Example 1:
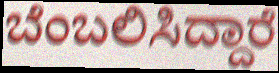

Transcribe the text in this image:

ಬೆಂಬಲಿಸಿದ್ದಾರೆ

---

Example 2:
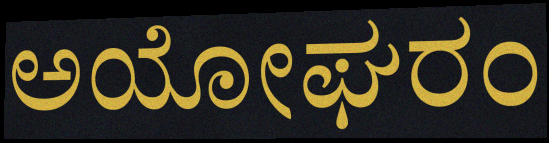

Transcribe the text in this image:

ಅಯೋಘರಂ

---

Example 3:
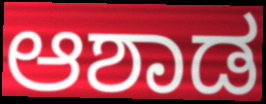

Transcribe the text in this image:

ಆಶಾಡ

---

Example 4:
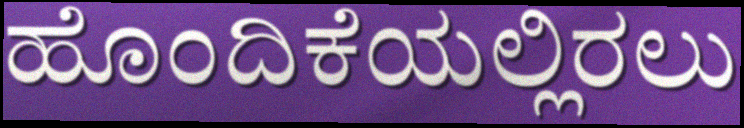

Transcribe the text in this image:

ಹೊಂದಿಕೆಯಲ್ಲಿರಲು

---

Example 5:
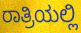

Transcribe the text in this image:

ರಾತ್ರಿಯಲ್ಲಿ